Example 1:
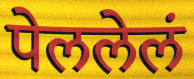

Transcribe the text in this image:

पेललेलं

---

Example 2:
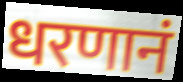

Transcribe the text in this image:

धरणानं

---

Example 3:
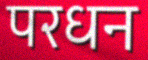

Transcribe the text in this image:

परधन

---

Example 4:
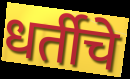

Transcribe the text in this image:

धर्तीचे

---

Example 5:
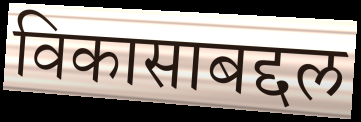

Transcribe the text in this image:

विकासाबद्दल